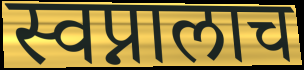
स्वप्नालाच